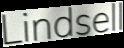
Lindsell